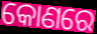
କୋଣରେ